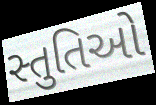
સ્તુતિઓ